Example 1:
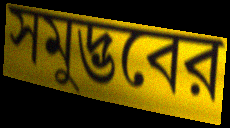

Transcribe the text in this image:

সমুদ্ভবের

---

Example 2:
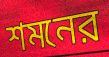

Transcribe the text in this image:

শমনের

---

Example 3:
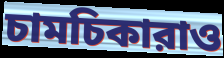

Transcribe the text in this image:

চামচিকারাও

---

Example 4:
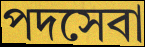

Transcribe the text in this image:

পদসেবা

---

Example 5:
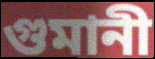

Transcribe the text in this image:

গুমানী